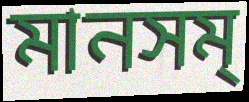
মানসম্